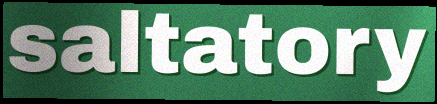
saltatory